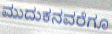
ಮುದುಕನವರೆಗೂ